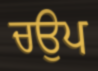
ਚਉਪ